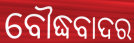
ବୌଦ୍ଧବାଦର